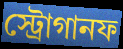
স্ট্রোগানফ